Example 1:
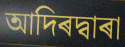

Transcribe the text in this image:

আদিৰদ্বাৰা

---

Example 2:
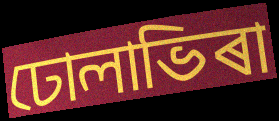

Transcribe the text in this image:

ঢোলাভিৰা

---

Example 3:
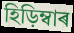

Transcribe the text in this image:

হিড়িম্বাৰ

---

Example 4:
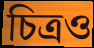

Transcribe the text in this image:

চিত্ৰও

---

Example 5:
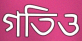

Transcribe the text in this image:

গতিও